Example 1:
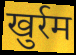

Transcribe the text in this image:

खुर्रम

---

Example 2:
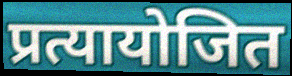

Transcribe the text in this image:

प्रत्यायोजित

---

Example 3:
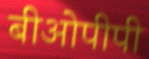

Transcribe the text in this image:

बीओपीपी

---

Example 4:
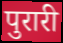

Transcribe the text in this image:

पुरारी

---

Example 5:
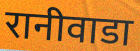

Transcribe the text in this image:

रानीवाडा